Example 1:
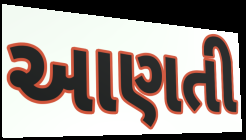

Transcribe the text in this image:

આણતી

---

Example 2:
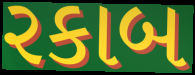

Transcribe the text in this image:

રકાબ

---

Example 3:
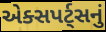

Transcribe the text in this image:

એક્સપર્ટ્સનું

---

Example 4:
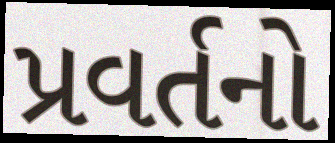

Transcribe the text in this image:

પ્રવર્તનો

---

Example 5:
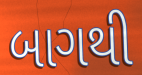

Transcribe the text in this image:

બાગથી